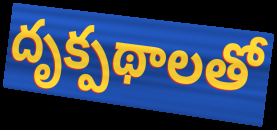
దృక్పథాలతో